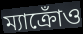
ম্যাক্রোঁও